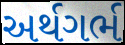
અર્થગર્ભ